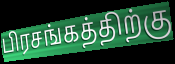
பிரசங்கத்திற்கு